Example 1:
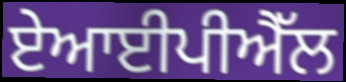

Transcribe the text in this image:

ਏਆਈਪੀਐੱਲ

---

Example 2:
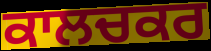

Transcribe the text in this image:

ਕਾਲਚਕਰ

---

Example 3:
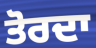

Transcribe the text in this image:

ਤੋਰਦਾ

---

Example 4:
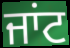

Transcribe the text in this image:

ਜਾਂਟ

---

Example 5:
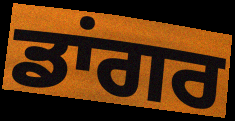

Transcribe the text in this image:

ਡਾਂਗਰ